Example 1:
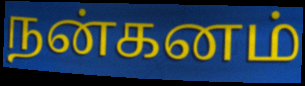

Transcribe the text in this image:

நன்கனம்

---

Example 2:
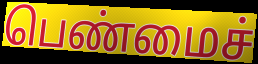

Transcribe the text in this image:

பெண்மைச்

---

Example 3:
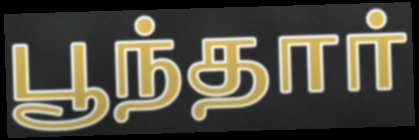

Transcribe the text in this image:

பூந்தார்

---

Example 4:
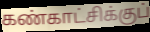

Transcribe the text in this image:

கண்காட்சிக்குப்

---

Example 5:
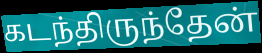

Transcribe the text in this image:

கடந்திருந்தேன்